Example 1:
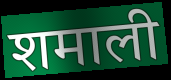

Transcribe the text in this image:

शमाली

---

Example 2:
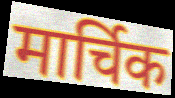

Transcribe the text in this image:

मार्चिक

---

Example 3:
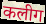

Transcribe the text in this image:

कलीग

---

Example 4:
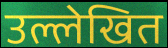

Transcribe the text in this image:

उल्लेखित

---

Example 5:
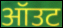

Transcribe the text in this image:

ऑउट